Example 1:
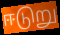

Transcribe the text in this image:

ஈடுறு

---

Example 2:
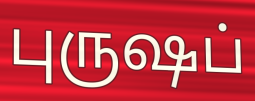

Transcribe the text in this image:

புருஷப்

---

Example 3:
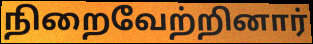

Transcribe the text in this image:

நிறைவேற்றினார்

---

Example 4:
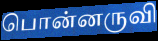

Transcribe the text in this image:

பொன்னருவி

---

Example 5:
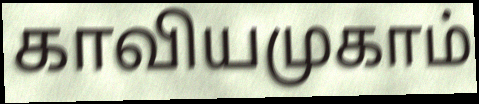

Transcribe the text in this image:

காவியமுகாம்